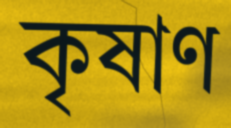
কৃষাণ